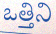
ఒత్తిని